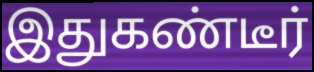
இதுகண்டீர்